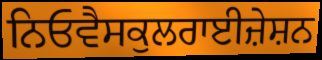
ਨਿਓਵੈਸਕੁਲਰਾਈਜ਼ੇਸ਼ਨ